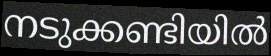
നടുക്കണ്ടിയിൽ